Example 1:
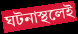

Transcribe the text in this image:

ঘটনাস্থলেই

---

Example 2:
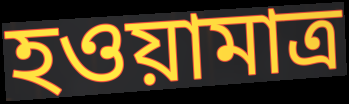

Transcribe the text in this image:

হওয়ামাত্র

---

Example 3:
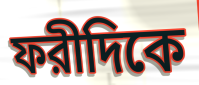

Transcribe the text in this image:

ফরীদিকে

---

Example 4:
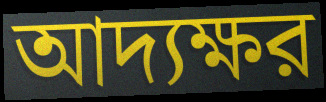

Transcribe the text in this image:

আদ্যক্ষর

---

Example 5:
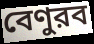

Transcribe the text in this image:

বেণুরব